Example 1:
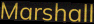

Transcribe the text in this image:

Marshall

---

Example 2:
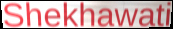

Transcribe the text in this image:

Shekhawati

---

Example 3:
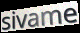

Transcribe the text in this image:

sivame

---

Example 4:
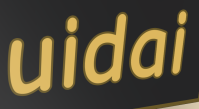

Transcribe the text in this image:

uidai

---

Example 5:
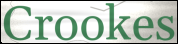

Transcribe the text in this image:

Crookes